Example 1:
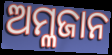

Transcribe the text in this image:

ଅମ୍ଳଜାନ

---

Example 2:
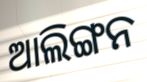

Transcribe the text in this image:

ଆଲିଙ୍ଗନ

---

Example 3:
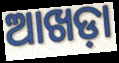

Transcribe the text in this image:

ଆଖଡ଼ା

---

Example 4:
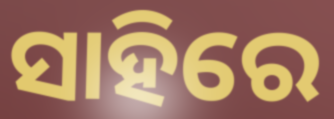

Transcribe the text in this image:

ସାହିରେ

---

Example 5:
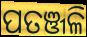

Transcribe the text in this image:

ପତଞ୍ଜଳି